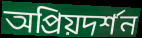
অপ্রিয়দর্শন